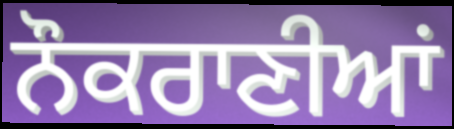
ਨੌਕਰਾਣੀਆਂ